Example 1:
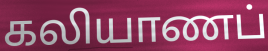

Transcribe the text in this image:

கலியாணப்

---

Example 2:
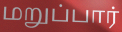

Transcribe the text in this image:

மறுப்பார்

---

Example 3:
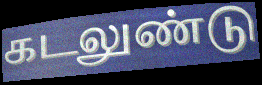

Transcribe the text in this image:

கடலுண்டு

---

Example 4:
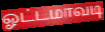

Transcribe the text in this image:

ஓட்டமாவடி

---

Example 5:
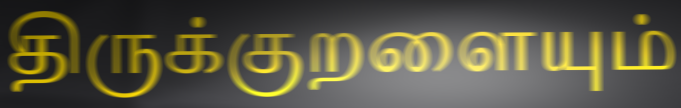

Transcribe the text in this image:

திருக்குறளையும்